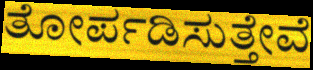
ತೋರ್ಪಡಿಸುತ್ತೇವೆ